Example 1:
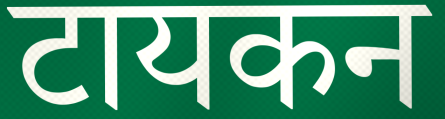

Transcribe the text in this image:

टायकन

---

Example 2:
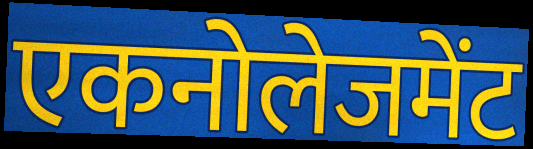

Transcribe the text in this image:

एकनोलेजमेंट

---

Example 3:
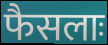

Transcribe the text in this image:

फैसलाः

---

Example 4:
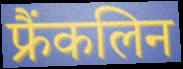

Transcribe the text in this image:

फ्रैंकलिन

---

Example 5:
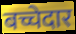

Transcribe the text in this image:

बच्चेदार